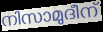
നിസാമുദീന്